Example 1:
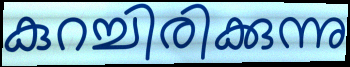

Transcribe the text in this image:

കുറച്ചിരിക്കുന്നു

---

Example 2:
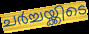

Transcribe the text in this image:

ചർച്ചയ്ക്കിടെ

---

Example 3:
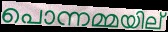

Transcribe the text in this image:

പൊന്നമ്മയില്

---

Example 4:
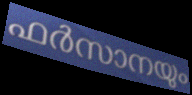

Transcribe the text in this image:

ഫർസാനയും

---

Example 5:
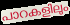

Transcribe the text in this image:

പാറകളിലും